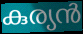
കുര്യൻ